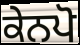
ਕੇਨਪੋ